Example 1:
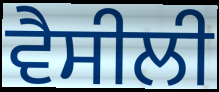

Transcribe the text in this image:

ਵੈਸੀਲੀ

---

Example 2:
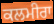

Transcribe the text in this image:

ਕਲਮੀਰਾ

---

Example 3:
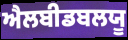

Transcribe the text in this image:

ਐਲਬੀਡਬਲਯੂ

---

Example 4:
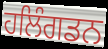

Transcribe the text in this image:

ਹਲਿੰਗਡਨ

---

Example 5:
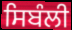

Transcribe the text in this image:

ਸਿਬੰਲੀ